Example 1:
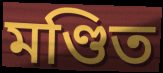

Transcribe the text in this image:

মণ্ডিত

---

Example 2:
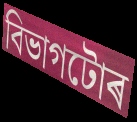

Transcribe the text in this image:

বিভাগটোৰ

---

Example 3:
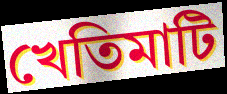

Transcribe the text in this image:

খেতিমাটি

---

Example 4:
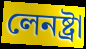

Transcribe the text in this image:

লেনষ্ট্ৰা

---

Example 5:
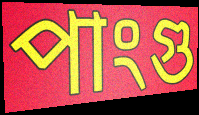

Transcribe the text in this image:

পাংগু